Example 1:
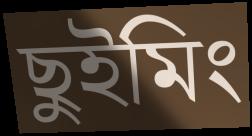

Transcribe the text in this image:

ছুইমিং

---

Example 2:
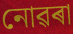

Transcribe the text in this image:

নোৱৰা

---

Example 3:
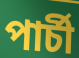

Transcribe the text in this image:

পাৰ্চী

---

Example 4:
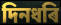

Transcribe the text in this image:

দিনধৰি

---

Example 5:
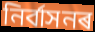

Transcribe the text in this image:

নিৰ্বাসনৰ